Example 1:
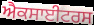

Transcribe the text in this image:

ਐਕਸਾਈਟਰਸ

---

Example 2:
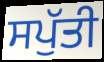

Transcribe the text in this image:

ਸਪੁੱਤੀ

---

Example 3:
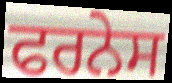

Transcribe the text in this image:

ਫਰਨੇਸ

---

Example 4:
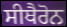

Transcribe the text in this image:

ਸੀਥੈਰੋਨ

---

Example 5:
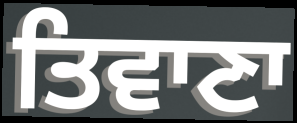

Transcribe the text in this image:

ਤਿਵਾਣਾ